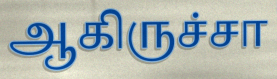
ஆகிருச்சா